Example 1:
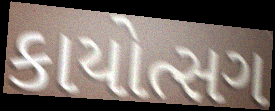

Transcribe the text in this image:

કાયોત્સગ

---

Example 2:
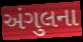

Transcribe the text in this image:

અંગુલના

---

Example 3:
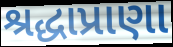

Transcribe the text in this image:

શ્રદ્ધાપ્રાણા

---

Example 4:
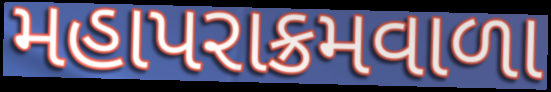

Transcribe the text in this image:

મહાપરાક્રમવાળા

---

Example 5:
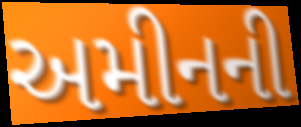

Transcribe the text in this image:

અમીનની